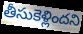
తీసుకెళ్లిందని